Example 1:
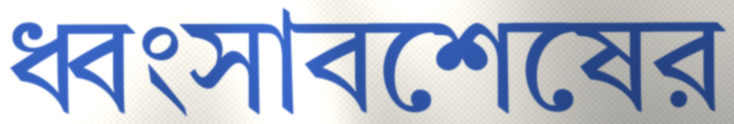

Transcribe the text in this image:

ধ্বংসাবশেষের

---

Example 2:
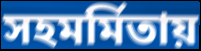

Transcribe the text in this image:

সহমর্মিতায়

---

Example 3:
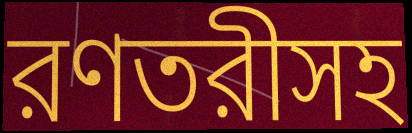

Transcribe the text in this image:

রণতরীসহ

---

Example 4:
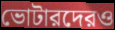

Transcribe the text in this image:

ভোটারদেরও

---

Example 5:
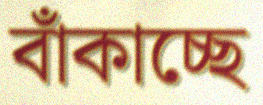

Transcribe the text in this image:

বাঁকাচ্ছে